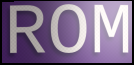
ROM